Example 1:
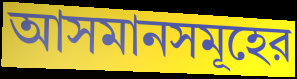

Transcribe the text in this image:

আসমানসমূহের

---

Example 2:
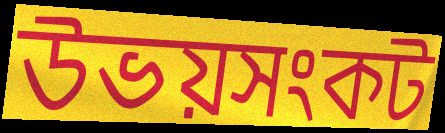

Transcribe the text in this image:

উভয়সংকট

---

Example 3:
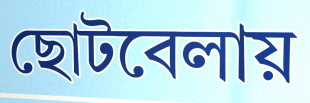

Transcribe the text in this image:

ছোটবেলায়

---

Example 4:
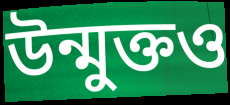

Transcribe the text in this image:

উন্মুক্তও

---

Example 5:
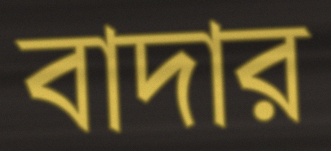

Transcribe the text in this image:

বাদার